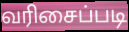
வரிசைப்படி